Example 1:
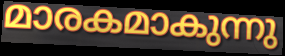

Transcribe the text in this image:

മാരകമാകുന്നു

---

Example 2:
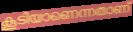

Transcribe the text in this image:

കൂടിയാണെന്നതാണ്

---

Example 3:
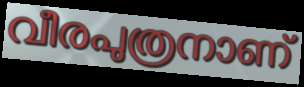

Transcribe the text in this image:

വീരപുത്രനാണ്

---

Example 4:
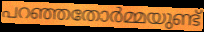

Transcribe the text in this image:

പറഞ്ഞതോർമ്മയുണ്ട്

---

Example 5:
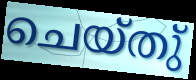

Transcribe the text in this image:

ചെയ്തു്